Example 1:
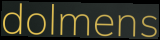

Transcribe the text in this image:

dolmens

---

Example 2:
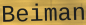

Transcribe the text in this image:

Beiman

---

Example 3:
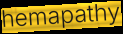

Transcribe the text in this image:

hemapathy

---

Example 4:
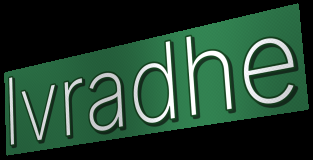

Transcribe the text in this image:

lvradhe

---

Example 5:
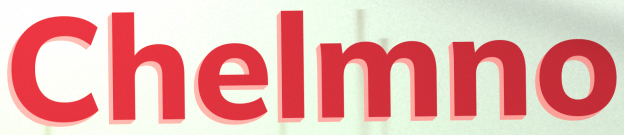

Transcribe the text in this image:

Chelmno